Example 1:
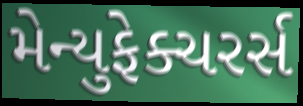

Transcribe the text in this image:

મેન્યુફેક્ચરર્સ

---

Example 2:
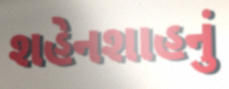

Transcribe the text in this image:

શહેનશાહનું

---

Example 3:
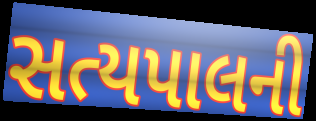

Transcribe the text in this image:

સત્યપાલની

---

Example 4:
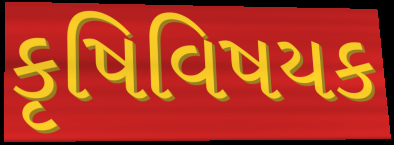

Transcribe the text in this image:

કૃષિવિષયક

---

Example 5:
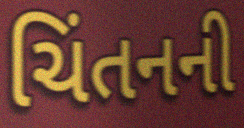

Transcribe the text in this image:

ચિંતનની